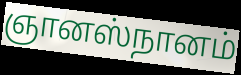
ஞானஸ்நானம்